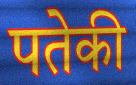
पतेकी